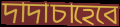
দাদাচাহেবে